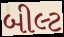
બીલ્ટ